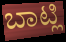
ಬಾಟ್ಲಿ